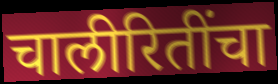
चालीरितींचा